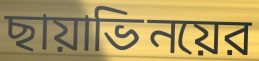
ছায়াভিনয়ের